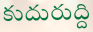
కుదురుద్ది